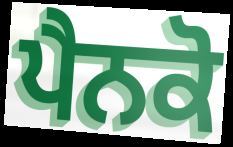
ਪੈਨਕੋ